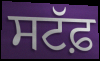
ਸਟੱਫ਼